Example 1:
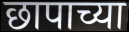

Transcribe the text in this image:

छापाच्या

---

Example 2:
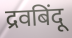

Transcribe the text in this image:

द्रवबिंदू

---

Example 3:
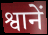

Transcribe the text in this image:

श्वानें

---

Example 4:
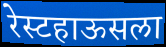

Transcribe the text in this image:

रेस्टहाऊसला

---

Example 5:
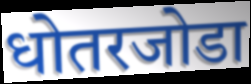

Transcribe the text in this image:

धोतरजोडा